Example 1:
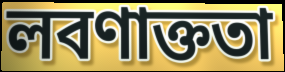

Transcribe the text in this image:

লবণাক্ততা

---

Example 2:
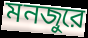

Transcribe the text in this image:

মনজুরে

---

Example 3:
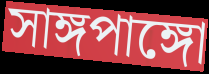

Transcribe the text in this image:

সাঙ্গপাঙ্গো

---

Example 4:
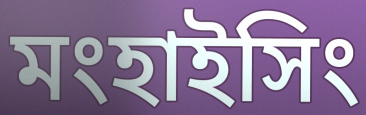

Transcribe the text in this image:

মংহাইসিং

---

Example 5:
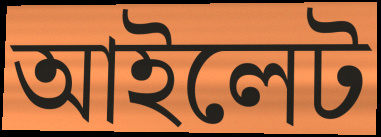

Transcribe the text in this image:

আইলেট